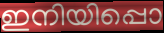
ഇനിയിപ്പൊ